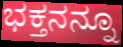
ಭಕ್ತನನ್ನೂ